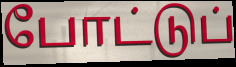
போட்டுப்